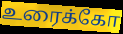
உரைக்கோ